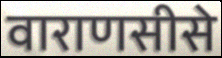
वाराणसीसे